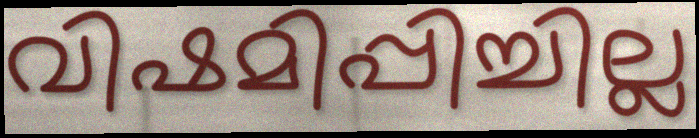
വിഷമിപ്പിച്ചില്ല